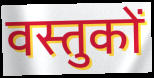
वस्तुकों